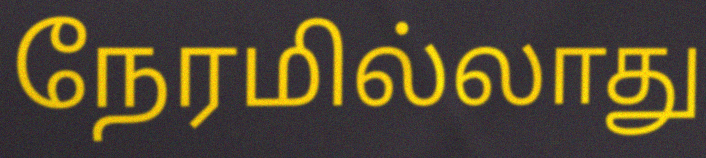
நேரமில்லாது